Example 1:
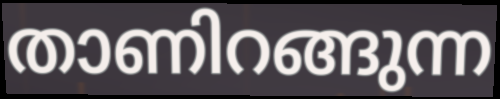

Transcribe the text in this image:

താണിറങ്ങുന്ന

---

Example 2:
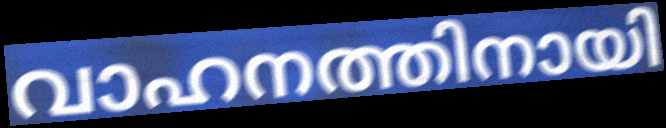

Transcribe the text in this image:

വാഹനത്തിനായി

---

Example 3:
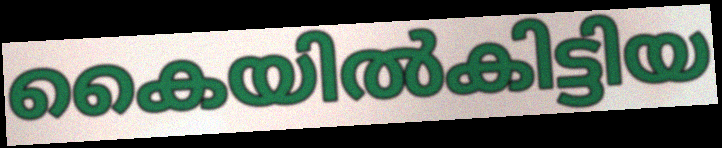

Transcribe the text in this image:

കൈയിൽകിട്ടിയ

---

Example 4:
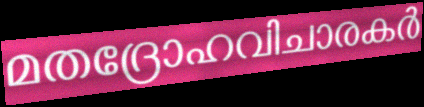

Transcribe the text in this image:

മതദ്രോഹവിചാരകർ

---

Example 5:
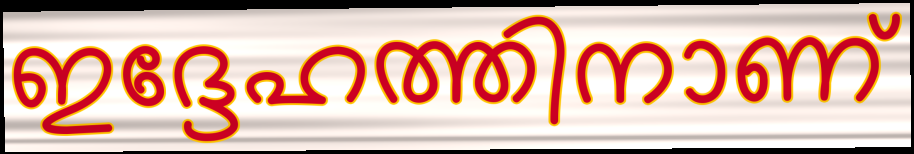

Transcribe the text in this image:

ഇദ്ദേഹത്തിനാണ്